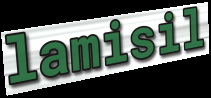
lamisil